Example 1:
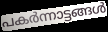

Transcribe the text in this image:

പകർന്നാട്ടങ്ങൾ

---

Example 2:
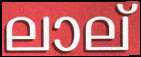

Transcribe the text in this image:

ലാല്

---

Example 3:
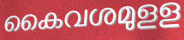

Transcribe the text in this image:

കൈവശമുളള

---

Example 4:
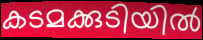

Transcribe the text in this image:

കടമക്കുടിയിൽ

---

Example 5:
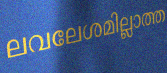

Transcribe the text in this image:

ലവലേശമില്ലാത്ത